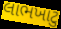
લાભખાટુ